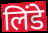
लिंडे